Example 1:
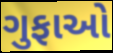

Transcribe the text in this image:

ગુફાઓ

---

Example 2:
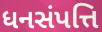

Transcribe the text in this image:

ધનસંપત્તિ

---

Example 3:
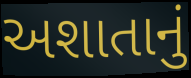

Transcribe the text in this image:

અશાતાનું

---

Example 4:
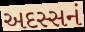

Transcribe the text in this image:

અદસ્સનં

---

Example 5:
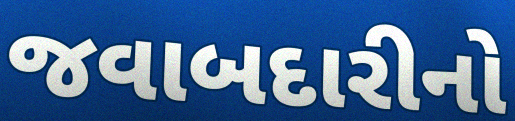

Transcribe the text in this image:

જવાબદારીનો